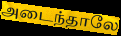
அடைந்தாலே